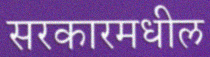
सरकारमधील